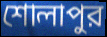
শোলাপুর